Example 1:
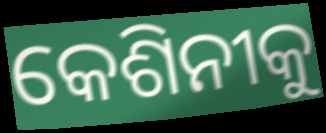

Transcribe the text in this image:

କେଶିନୀକୁ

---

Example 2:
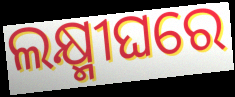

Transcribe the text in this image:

ଲକ୍ଷ୍ମୀଘରେ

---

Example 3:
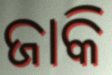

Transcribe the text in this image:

ଜାକି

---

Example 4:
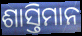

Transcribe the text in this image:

ଶାସ୍ତିମାନ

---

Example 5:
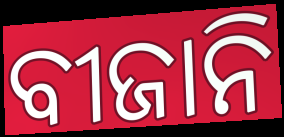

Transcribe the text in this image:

ବୀଜାନି